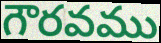
గౌరవము